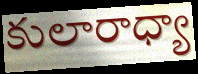
కులారాధ్యా